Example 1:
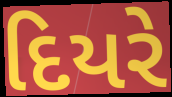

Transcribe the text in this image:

દિયરે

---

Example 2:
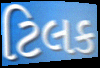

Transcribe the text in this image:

ટિલક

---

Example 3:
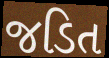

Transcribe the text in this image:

જડિત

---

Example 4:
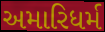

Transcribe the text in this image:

અમારિધર્મ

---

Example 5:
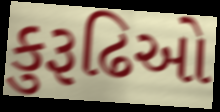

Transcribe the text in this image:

કુરૂઢિઓ